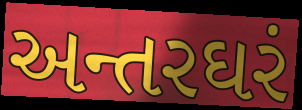
અન્તરઘરં